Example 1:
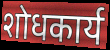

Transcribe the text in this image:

शोधकार्य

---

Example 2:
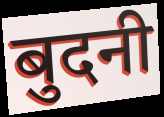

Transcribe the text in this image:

बुदनी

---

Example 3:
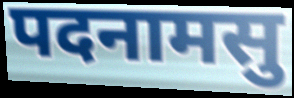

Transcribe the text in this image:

पदनामसु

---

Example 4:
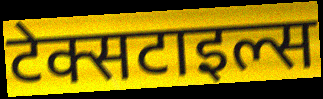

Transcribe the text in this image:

टेक्सटाइल्स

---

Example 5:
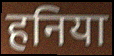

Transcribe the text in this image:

हनिया